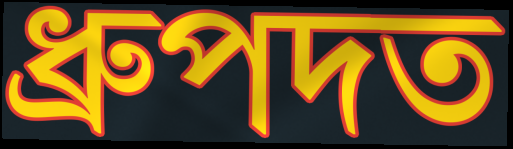
ধ্ৰুপদত